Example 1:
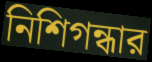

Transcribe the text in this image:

নিশিগন্ধার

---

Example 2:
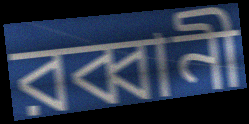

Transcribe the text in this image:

রব্বানী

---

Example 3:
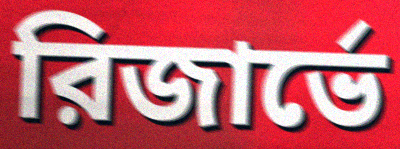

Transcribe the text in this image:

রিজার্ভে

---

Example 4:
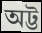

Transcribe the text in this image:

অট্ট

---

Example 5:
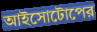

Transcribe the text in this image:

আইসোটোপের